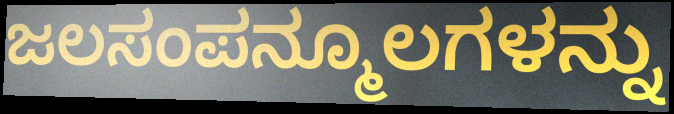
ಜಲಸಂಪನ್ಮೂಲಗಳನ್ನು